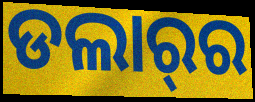
ଡଲାର୍‌ର